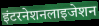
इंटरनेशनलाइजेशन